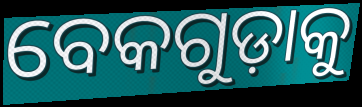
ବେକଗୁଡ଼ାକୁ